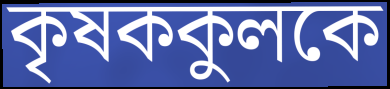
কৃষককুলকে